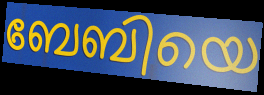
ബേബിയെ